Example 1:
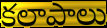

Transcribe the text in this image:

కలాపాలు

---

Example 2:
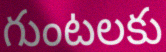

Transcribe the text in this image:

గుంటలకు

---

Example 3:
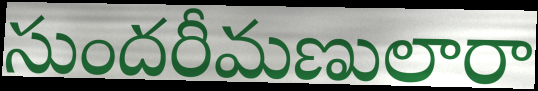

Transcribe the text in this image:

సుందరీమణులారా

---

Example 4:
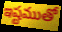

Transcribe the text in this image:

ఇష్టముతో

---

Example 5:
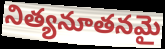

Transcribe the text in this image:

నిత్యనూతనమై